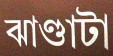
ঝাণ্ডাটা